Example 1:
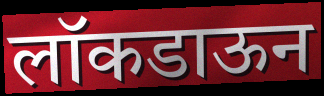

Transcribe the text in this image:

लॉकडाऊन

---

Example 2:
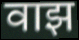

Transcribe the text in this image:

वाझ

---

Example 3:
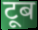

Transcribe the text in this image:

टूब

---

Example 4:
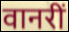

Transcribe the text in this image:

वानरीं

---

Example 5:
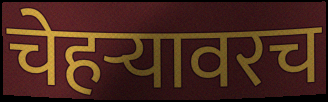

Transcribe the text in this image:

चेहर्‍यावरच